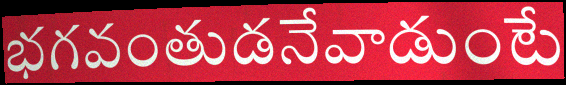
భగవంతుడనేవాడుంటే